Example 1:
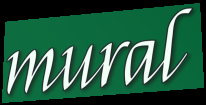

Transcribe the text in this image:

mural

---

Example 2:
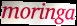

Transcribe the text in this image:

moringa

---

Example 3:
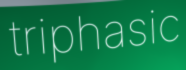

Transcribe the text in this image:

triphasic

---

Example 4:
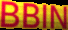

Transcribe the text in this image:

BBIN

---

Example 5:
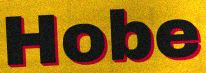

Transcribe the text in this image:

Hobe